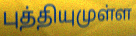
புத்தியுமுள்ள